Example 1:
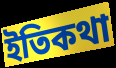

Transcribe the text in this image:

ইতিকথা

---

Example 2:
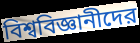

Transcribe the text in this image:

বিশ্ববিজ্ঞানীদের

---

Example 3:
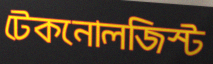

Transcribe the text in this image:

টেকনোলজিস্ট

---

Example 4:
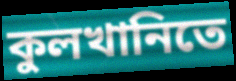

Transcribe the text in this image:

কুলখানিতে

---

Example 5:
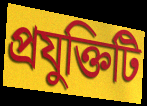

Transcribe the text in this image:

প্রযুক্তিটি